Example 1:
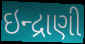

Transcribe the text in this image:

ઇન્દ્રાણી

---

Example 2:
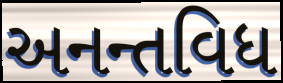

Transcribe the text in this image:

અનન્તવિધ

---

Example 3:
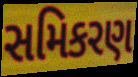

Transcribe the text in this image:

સમિકરણ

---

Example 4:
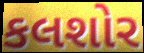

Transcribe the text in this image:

કલશોર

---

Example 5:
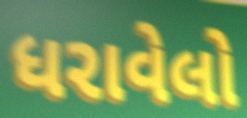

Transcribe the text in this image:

ધરાવેલો